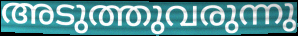
അടുത്തുവരുന്നു